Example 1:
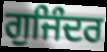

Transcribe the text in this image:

ਗੁਜਿੰਦਰ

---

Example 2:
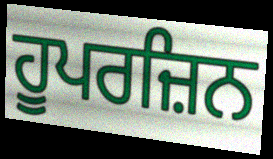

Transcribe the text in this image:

ਹੂਪਰਜ਼ਿਨ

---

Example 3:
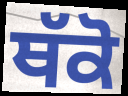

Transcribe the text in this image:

ਥੱਕੋ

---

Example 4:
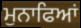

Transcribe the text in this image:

ਮੁਨਾਫਿਆਂ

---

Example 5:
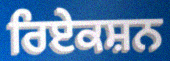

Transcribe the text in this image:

ਰਿਏਕਸ਼ਨ